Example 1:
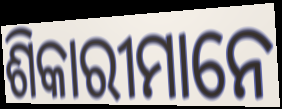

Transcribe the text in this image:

ଶିକାରୀମାନେ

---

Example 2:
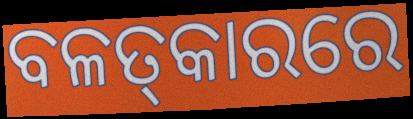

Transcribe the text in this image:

ବଳତ୍‌କାରରେ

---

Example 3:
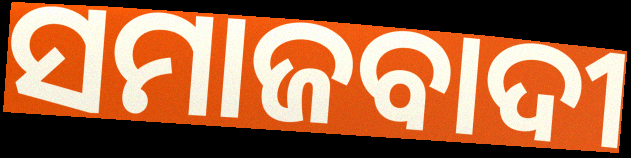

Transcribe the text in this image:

ସମାଜବାଦୀ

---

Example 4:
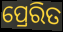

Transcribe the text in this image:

ପ୍ରେରିତ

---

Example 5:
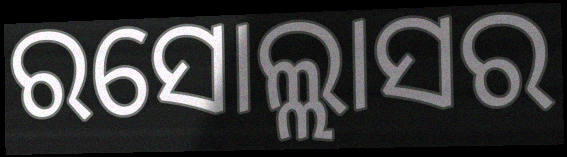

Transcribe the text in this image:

ରସୋଲ୍ଲାସର